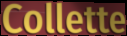
Collette